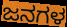
ಜನಗಳ